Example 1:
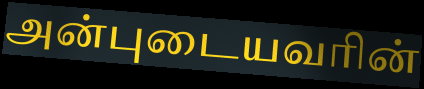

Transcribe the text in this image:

அன்புடையவரின்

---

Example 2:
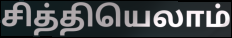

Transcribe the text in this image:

சித்தியெலாம்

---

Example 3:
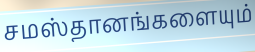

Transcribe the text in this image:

சமஸ்தானங்களையும்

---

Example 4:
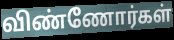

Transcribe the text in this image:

விண்ணோர்கள்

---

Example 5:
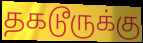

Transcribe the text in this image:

தகடூருக்கு